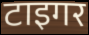
टाइगर